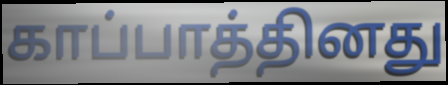
காப்பாத்தினது